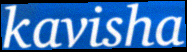
kavisha